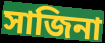
সাজিনা